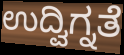
ಉದ್ವಿಗ್ನತೆ